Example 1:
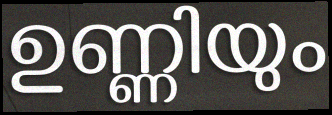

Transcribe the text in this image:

ഉണ്ണിയും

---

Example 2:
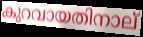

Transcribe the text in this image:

കുറവായതിനാല്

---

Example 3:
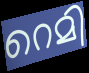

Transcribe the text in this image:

റെമി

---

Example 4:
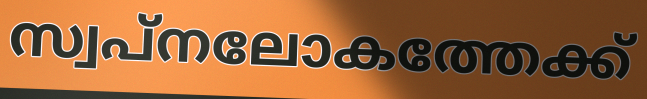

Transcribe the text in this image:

സ്വപ്നലോകത്തേക്ക്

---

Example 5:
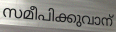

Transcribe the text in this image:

സമീപിക്കുവാന്